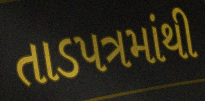
તાડપત્રમાંથી